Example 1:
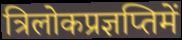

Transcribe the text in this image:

त्रिलोकप्रज्ञप्तिमें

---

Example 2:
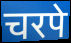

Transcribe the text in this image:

चरपे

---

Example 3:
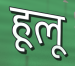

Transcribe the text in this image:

हूलू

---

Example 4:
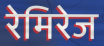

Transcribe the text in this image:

रेमिरेज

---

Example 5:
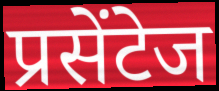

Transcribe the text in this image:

प्रसेंटेज